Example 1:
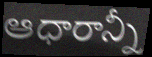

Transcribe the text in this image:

ఆధారాన్నీ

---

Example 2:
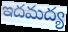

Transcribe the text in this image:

ఇదమద్య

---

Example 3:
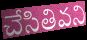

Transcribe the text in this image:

చేసితివని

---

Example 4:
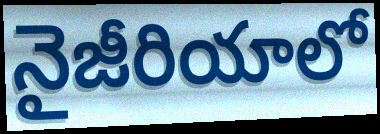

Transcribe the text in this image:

నైజీరియాలో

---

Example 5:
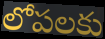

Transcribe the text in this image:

లోపలకు